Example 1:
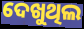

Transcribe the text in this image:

ଦେଖୁଥିଲ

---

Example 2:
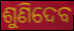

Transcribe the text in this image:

ଶୁଣିଦେବ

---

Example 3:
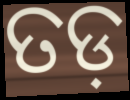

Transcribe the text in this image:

ତଡ଼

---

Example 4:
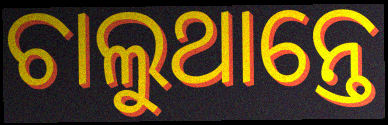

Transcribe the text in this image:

ଚାଲୁଥାନ୍ତେ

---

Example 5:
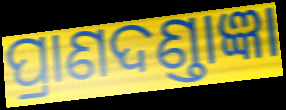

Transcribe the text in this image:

ପ୍ରାଣଦଣ୍ଡାଜ୍ଞା